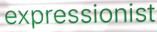
expressionist